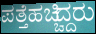
ಪತ್ತೆಹಚ್ಚಿದ್ದರು